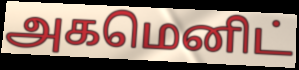
அகமெனிட்